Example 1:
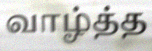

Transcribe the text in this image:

வாழ்த்த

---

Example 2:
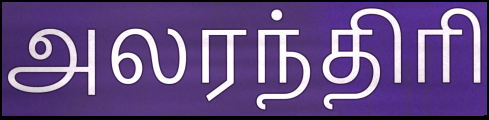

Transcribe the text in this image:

அலரந்திரி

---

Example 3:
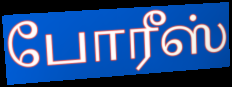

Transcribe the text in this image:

போரீஸ்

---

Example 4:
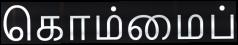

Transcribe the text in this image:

கொம்மைப்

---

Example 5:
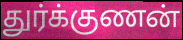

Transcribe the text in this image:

துர்க்குணன்